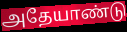
அதேயாண்டு